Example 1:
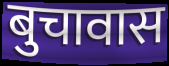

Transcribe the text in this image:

बुचावास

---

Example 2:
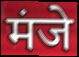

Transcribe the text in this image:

मंजे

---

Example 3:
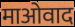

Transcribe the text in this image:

माओवाद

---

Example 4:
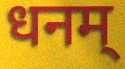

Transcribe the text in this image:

धनम्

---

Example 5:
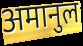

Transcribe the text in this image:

अमानुल